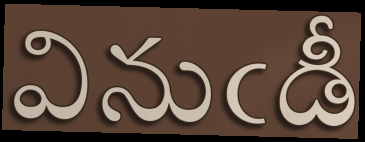
వినుఁడీ